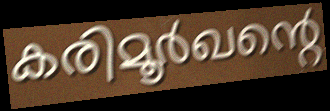
കരിമൂർഖന്റെ